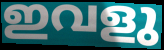
ഇവളു